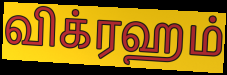
விக்ரஹம்